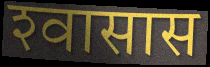
श्वासास